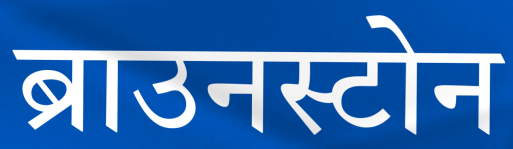
ब्राउनस्टोन